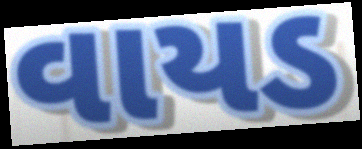
વાયડ